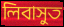
লিবাসুত